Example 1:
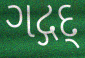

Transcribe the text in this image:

ગદ્ગદ્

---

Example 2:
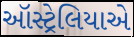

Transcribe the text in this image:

ઑસ્ટ્રેલિયાએ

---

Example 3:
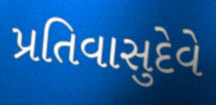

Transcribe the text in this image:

પ્રતિવાસુદેવે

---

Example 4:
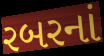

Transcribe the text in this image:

રબરનાં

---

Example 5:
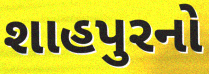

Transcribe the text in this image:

શાહપુરનો